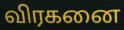
விரகனை